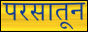
परसातून